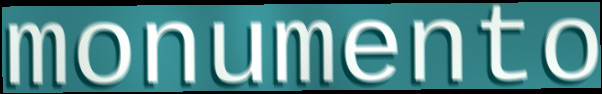
monumento